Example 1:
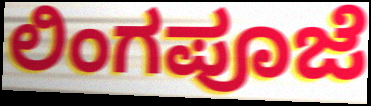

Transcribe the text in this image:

ಲಿಂಗಪೂಜೆ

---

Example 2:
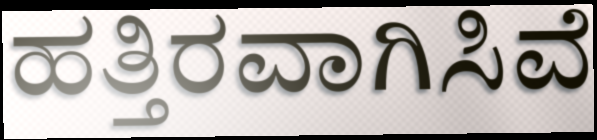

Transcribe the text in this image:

ಹತ್ತಿರವಾಗಿಸಿವೆ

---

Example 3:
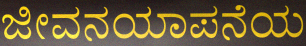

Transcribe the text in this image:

ಜೀವನಯಾಪನೆಯ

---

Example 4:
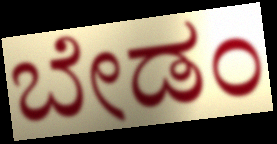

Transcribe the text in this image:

ಬೇಡಂ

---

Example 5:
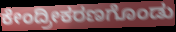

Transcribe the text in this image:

ಕೇಂದ್ರೀಕರಣಗೊಂಡು